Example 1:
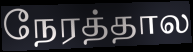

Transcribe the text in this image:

நேரத்தால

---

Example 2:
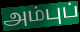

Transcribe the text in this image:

அம்புப்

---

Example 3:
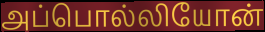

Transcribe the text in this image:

அப்பொல்லியோன்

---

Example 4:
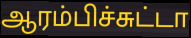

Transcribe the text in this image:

ஆரம்பிச்சுட்டா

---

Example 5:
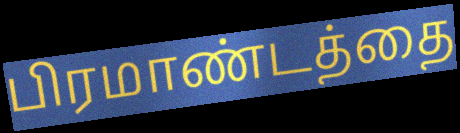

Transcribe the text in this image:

பிரமாண்டத்தை